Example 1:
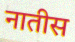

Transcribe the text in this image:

नातीस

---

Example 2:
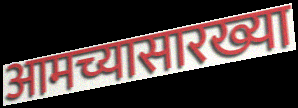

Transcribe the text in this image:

आमच्यासारख्या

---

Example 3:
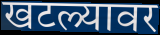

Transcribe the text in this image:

खटल्यावर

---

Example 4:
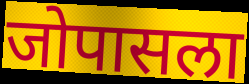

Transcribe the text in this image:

जोपासला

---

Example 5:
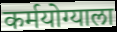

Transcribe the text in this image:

कर्मयोग्याला